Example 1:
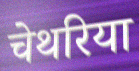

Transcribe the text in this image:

चेथरिया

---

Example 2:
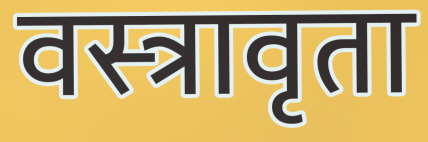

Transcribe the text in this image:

वस्त्रावृता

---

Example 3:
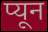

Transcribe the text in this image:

प्यून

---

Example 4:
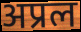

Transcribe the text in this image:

अप्रल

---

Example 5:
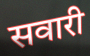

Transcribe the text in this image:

सवारी